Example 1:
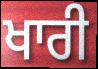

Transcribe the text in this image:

ਖਾਰੀ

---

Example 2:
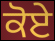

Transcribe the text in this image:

ਕੋਏ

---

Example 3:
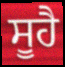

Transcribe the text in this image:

ਸੂਹੈ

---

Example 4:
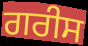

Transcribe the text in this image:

ਗਰੀਸ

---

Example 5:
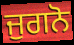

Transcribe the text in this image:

ਜੁਗਨੋ